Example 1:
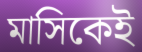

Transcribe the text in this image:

মাসিকেই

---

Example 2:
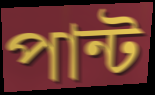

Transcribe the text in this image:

পান্ট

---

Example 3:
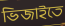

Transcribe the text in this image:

ভিজাইতে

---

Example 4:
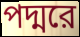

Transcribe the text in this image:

পদ্মরে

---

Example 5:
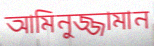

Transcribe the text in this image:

আমিনুজ্জামান